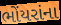
ભોંયરાંના